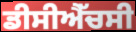
ਡੀਸੀਐੱਚਸੀ